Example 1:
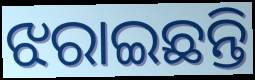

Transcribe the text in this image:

ଝରାଇଛନ୍ତି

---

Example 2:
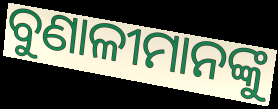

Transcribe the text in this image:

ବୁଣାଳୀମାନଙ୍କୁ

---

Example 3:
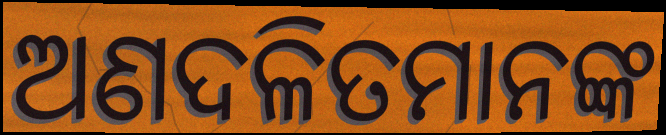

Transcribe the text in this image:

ଅଣଦଳିତମାନଙ୍କ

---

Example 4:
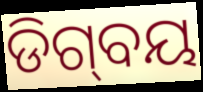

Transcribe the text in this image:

ଡିଗ୍‌ବୟ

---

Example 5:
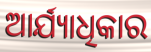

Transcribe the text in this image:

ଆର୍ଯ୍ୟାଧିକାର